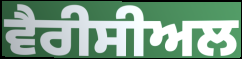
ਵੈਰੀਸੀਅਲ